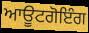
ਆਊਟਗੋਇੰਗ